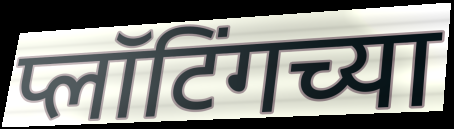
प्लॉटिंगच्या